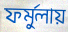
ফর্মুলায়